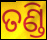
ତଣ୍ଡି